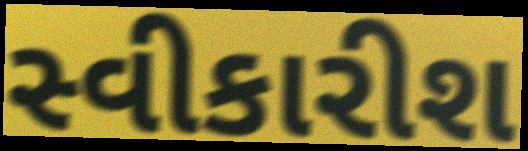
સ્વીકારીશ